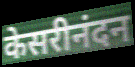
केसरीनंदन